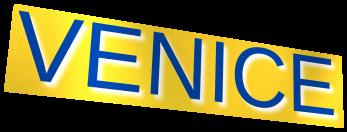
VENICE